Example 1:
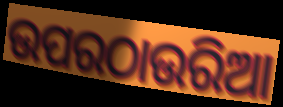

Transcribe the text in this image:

ଉପରଠାଉରିଆ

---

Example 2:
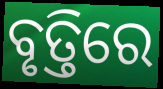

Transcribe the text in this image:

ବୃତ୍ତିରେ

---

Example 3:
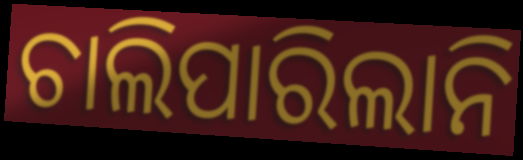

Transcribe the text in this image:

ଚାଲିପାରିଲାନି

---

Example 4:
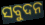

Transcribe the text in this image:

ସବୁଦନ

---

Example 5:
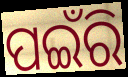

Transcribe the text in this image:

ପଇଁରି